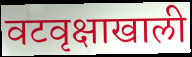
वटवृक्षाखाली